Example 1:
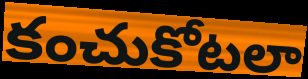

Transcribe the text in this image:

కంచుకోటలా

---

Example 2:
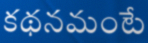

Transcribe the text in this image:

కథనమంటే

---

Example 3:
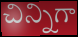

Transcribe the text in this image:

చిన్నిగా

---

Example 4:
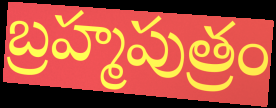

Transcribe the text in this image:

బ్రహ్మపుత్రం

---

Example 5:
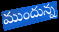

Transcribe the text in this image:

ముందున్న